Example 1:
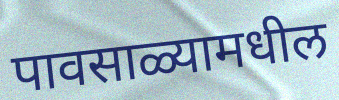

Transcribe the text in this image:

पावसाळ्यामधील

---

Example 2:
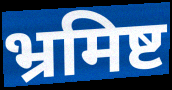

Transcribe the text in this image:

भ्रमिष्ट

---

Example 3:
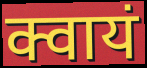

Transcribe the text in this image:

क्वायं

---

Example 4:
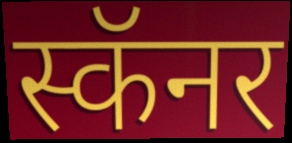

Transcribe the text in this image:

स्कॅनर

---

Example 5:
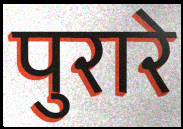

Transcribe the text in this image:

पुरारे